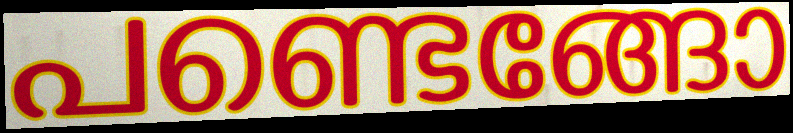
പണ്ടെങ്ങോ